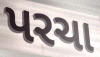
પરચા